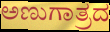
ಅಣುಗಾತ್ರದ